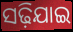
ସଢ଼ିଯାଇ